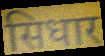
सिधार